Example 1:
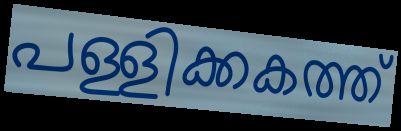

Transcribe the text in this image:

പള്ളിക്കകത്ത്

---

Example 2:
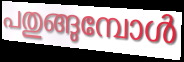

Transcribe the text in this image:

പതുങ്ങുമ്പോൾ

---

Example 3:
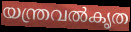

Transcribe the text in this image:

യന്ത്രവൽകൃത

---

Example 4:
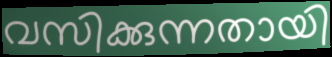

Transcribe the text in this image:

വസിക്കുന്നതായി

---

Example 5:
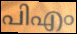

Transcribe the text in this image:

പിഎം